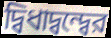
দ্বিধাদ্বন্দ্বের